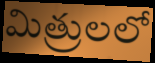
మిత్రులలో